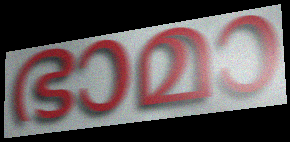
ഭാമാ